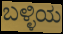
ಬಳ್ಳಿಯ